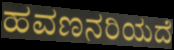
ಹವಣನರಿಯದೆ